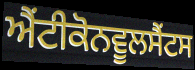
ਐਂਟੀਕੋਨਵੂਲਸੈਂਟਸ